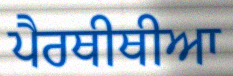
ਪੈਰਥੀਥੀਆ